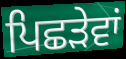
ਪਿਛੜੇਵਾਂ